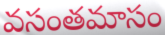
వసంతమాసం